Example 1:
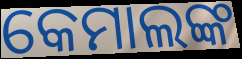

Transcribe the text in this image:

କେମାଲଙ୍କ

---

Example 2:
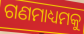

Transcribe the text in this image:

ଗଣମାଧ୍ୟମକୁ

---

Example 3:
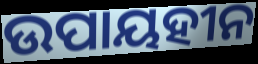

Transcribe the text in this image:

ଉପାୟହୀନ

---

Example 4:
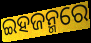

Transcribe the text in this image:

ଇହଜନ୍ମରେ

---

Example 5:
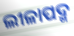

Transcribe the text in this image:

ଲୀଳାପଦ୍ମ